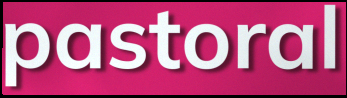
pastoral